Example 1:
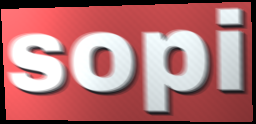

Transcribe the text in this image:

sopi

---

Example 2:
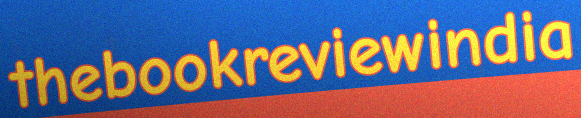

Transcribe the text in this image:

thebookreviewindia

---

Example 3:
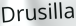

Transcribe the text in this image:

Drusilla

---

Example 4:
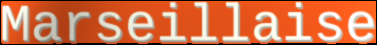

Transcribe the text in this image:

Marseillaise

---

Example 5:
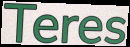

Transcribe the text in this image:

Teres